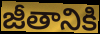
జీతానికి